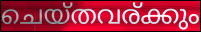
ചെയ്തവര്ക്കും